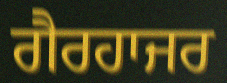
ਗੈਰਹਾਜਰ